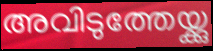
അവിടുത്തേയ്ക്കു